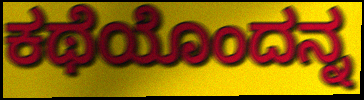
ಕಥೆಯೊಂದನ್ನ